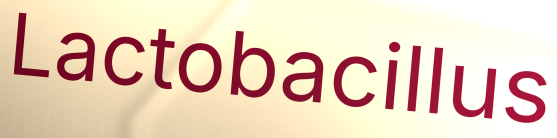
Lactobacillus